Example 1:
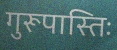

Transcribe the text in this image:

गुरूपास्तिः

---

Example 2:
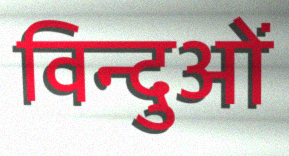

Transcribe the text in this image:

विन्दुओं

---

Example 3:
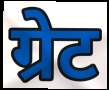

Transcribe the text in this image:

ग्रेट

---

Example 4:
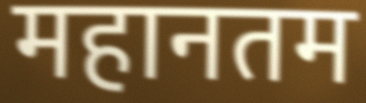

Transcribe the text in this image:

महानतम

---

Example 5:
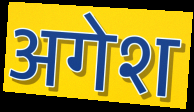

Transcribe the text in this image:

अगेश